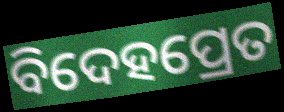
ବିଦେହପ୍ରେତ